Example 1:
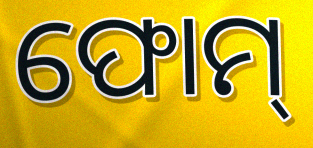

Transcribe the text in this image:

ଫୋମ୍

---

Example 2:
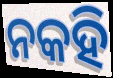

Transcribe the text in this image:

ନକହି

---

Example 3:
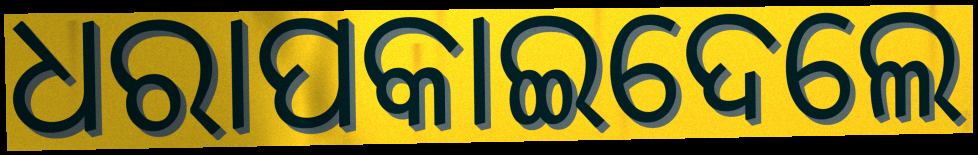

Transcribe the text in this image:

ଧରାପକାଇଦେଲେ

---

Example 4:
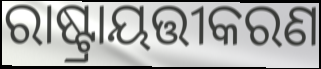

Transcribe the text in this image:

ରାଷ୍ଟ୍ରାୟତ୍ତୀକରଣ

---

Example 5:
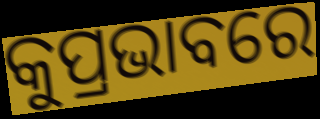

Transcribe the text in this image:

କୁପ୍ରଭାବରେ